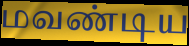
மவண்டிய